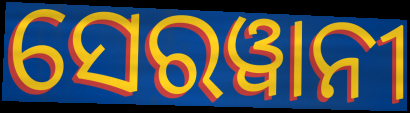
ସେରୱାନୀ